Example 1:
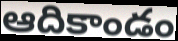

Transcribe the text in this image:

ఆదికాండం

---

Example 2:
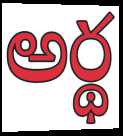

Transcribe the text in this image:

అర్థ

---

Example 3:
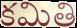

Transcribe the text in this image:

కమితి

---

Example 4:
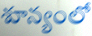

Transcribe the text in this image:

శూన్యంలో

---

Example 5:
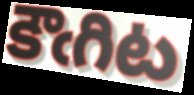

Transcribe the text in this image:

కౌఁగిట